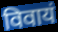
विवायं